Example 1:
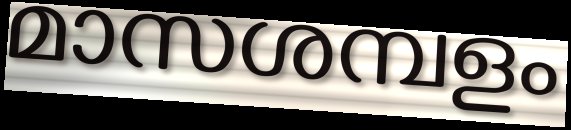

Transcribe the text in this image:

മാസശമ്പളം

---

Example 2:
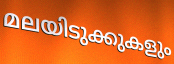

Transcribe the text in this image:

മലയിടുക്കുകളും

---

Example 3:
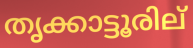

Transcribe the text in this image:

തൃക്കാട്ടൂരില്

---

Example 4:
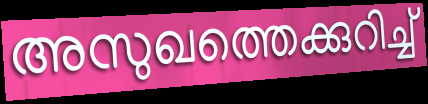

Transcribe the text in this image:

അസുഖത്തെക്കുറിച്ച്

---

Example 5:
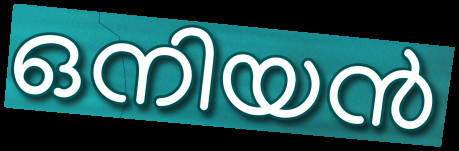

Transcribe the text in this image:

ഒനിയൻ